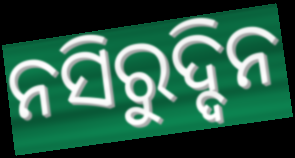
ନସିରୁଦ୍ଦିନ